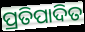
ପ୍ରତିପାଦିତ